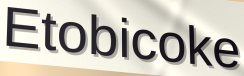
Etobicoke